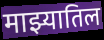
माझ्यातिल